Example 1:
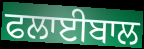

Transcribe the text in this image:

ਫਲਾਈਬਾਲ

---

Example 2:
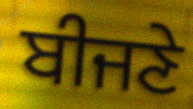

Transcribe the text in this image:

ਬੀਜਣੇ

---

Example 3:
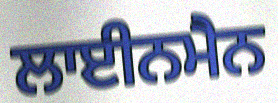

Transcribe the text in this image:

ਲਾਈਨਮੈਨ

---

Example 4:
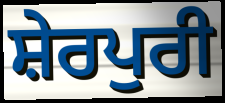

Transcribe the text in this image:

ਸ਼ੇਰਪੁਰੀ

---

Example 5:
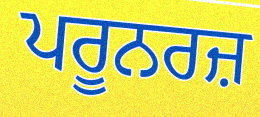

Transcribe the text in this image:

ਪਰੂਨਰਜ਼